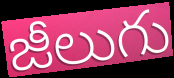
జీలుగు